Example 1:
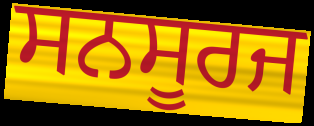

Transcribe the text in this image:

ਸਨਸੂਰਜ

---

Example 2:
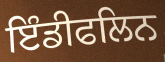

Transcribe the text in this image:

ਇੰਡੀਫਲਿਨ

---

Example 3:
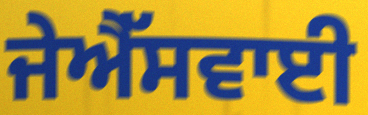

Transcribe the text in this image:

ਜੇਐੱਸਵਾਈ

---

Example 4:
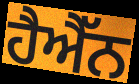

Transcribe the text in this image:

ਹੈਐੱਨ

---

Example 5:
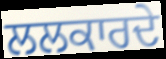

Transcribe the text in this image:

ਲਲਕਾਰਦੇ